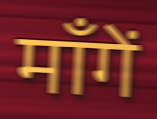
माँगें